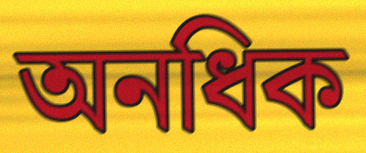
অনধিক